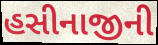
હસીનાજીની